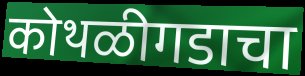
कोथळीगडाचा